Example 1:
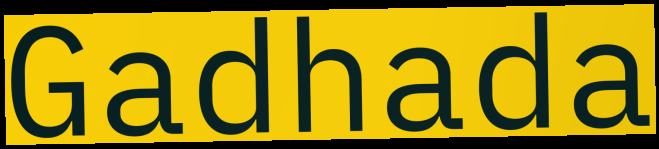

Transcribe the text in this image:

Gadhada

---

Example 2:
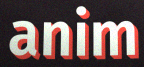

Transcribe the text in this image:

anim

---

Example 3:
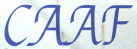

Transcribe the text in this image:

CAAF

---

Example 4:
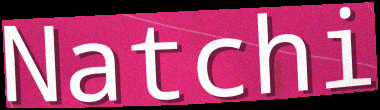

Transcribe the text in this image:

Natchi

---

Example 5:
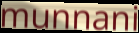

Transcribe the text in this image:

munnani